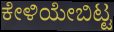
ಕೇಳಿಯೇಬಿಟ್ಟ